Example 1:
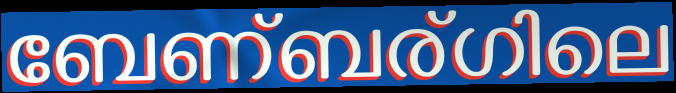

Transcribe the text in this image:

ബേണ്ബര്ഗിലെ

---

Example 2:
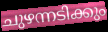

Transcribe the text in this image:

ചുഴന്നടിക്കും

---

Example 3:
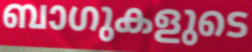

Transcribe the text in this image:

ബാഗുകളുടെ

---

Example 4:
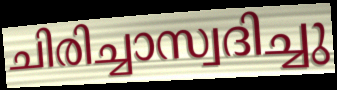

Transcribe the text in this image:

ചിരിച്ചാസ്വദിച്ചു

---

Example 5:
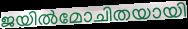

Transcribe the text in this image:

ജയിൽമോചിതയായി